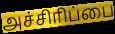
அச்சிரிப்பை